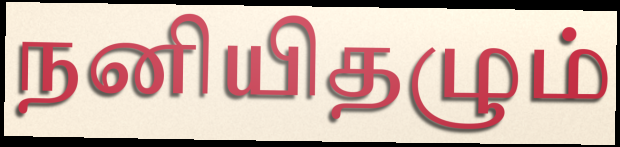
நனியிதழும்